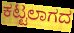
ಕಟ್ಟಲಾಗದ